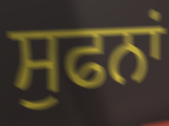
ਸੁਫਨਾਂ